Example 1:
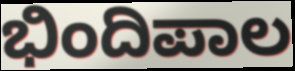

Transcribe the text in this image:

ಭಿಂದಿಪಾಲ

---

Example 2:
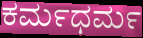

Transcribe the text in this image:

ಕರ್ಮಧರ್ಮ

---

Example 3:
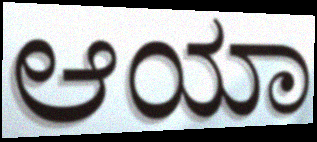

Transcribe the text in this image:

ಆಯಾ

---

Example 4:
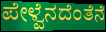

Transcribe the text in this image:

ಪೇಳ್ವೆನದೆಂತೆನೆ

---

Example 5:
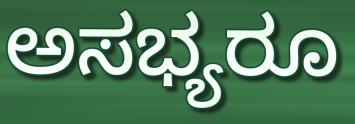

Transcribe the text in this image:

ಅಸಭ್ಯರೂ